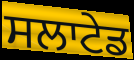
ਸਲਾਟੇਡ